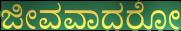
ಜೀವವಾದರೋ